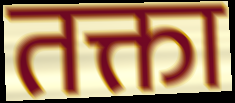
तक्ता